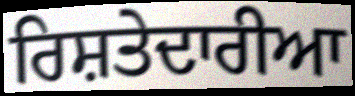
ਰਿਸ਼ਤੇਦਾਰੀਆ